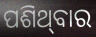
ପଶିଥ୍‌ବାର